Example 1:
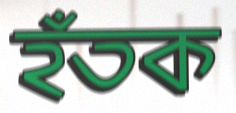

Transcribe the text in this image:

হঁতক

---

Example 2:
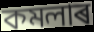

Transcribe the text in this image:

কমলাৰ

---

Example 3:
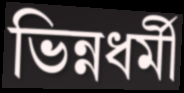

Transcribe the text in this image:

ভিন্নধৰ্মী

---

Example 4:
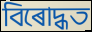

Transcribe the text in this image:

বিৰোদ্ধত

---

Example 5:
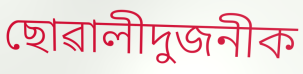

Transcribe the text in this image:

ছোৱালীদুজনীক